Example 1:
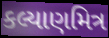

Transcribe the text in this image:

કલ્યાણમિત્ર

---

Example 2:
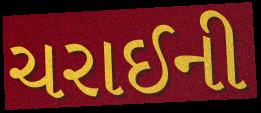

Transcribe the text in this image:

ચરાઈની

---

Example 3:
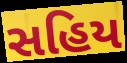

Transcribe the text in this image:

સહિય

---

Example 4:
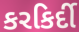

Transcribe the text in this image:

કરકિર્દી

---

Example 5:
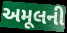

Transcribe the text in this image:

અમૂલની